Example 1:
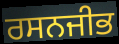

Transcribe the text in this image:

ਰਸਨਜੀਭ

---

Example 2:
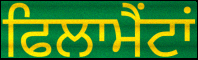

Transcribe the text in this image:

ਫਿਲਾਮੈਂਟਾਂ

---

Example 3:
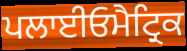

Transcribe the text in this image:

ਪਲਾਈਓਮੈਟ੍ਰਿਕ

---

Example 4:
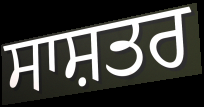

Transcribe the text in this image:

ਸਾਸ਼ਤਰ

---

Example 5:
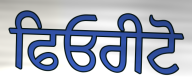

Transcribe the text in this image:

ਫਿਓਰੀਟੋ